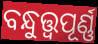
ବନ୍ଧୁତ୍ତ୍ୱପୂର୍ଣ୍ଣ